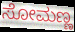
ಸೋಮಣ್ಣ